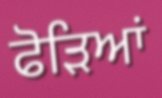
ਫੋੜਿਆਂ